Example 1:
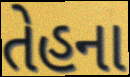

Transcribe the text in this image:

તેહના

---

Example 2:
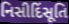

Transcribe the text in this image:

નિસીદિંસૂતિ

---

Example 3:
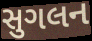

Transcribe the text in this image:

સુગલન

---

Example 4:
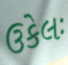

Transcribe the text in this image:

ઉકેલઃ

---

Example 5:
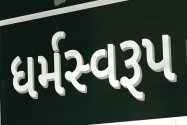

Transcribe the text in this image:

ધર્મસ્વરૂપ